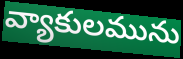
వ్యాకులమును